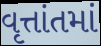
વૃત્તાંતમાં